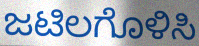
ಜಟಿಲಗೊಳಿಸಿ